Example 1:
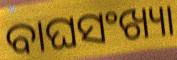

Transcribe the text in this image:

ବାଘସଂଖ୍ୟା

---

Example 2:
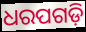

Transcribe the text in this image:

ଧରପଗଡ଼ି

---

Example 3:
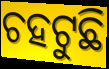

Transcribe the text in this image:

ଚହଟୁଛି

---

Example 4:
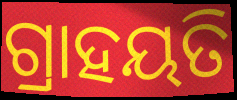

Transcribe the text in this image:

ଗ୍ରାହୟତି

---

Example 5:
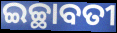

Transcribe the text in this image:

ଇଚ୍ଛାବତୀ